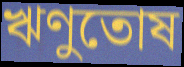
ঋণুতোষ